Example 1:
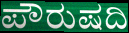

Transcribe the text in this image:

ಪೌರುಷದಿ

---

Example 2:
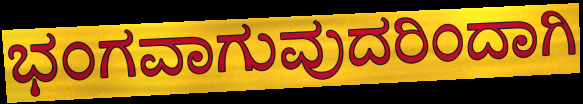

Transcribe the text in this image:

ಭಂಗವಾಗುವುದರಿಂದಾಗಿ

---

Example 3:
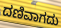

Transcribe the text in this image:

ದಣಿವಾಗದು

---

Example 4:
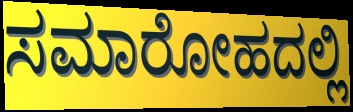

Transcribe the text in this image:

ಸಮಾರೋಹದಲ್ಲಿ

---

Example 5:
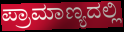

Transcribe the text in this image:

ಪ್ರಾಮಾಣ್ಯದಲ್ಲಿ